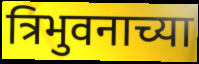
त्रिभुवनाच्या